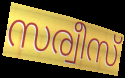
സര്വീസ്